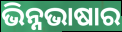
ଭିନ୍ନଭାଷାର